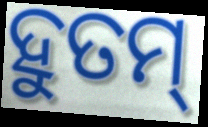
ହୁତମ୍